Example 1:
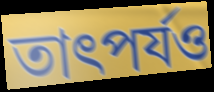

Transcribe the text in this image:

তাৎপর্যও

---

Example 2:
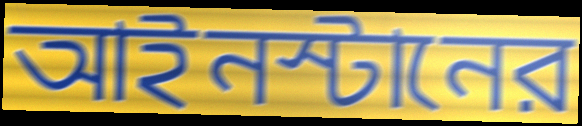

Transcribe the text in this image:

আইনস্টানের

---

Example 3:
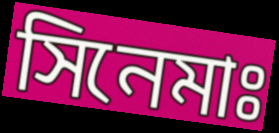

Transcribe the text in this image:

সিনেমাঃ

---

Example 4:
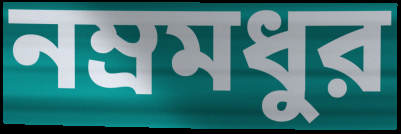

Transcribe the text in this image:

নম্রমধুর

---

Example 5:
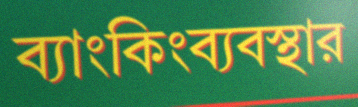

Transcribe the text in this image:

ব্যাংকিংব্যবস্থার